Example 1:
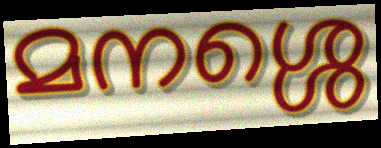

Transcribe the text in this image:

മനശ്ശെ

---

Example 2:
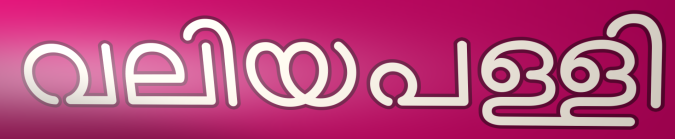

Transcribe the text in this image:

വലിയപള്ളി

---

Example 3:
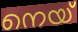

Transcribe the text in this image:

നെയ്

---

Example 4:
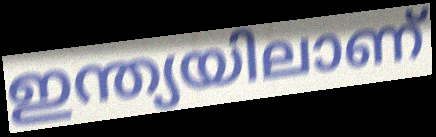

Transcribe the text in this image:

ഇന്ത്യയിലാണ്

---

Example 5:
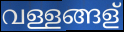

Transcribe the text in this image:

വള്ളങ്ങള്